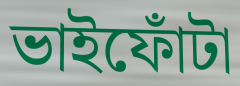
ভাইফোঁটা